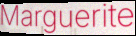
Marguerite